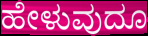
ಹೇಳುವುದೂ